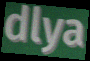
dlya